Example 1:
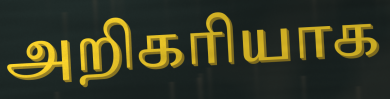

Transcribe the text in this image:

அறிகரியாக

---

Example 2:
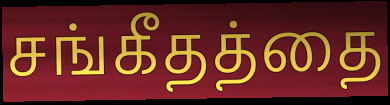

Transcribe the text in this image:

சங்கீதத்தை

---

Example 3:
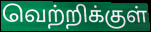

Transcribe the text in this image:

வெற்றிக்குள்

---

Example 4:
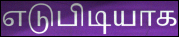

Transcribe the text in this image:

எடுபிடியாக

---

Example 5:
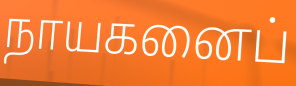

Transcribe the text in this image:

நாயகனைப்